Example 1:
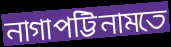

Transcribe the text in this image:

নাগাপট্টিনামতে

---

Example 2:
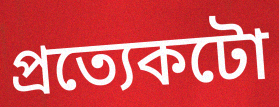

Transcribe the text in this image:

প্ৰত্যেকটো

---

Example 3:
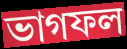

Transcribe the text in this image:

ভাগফল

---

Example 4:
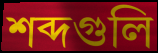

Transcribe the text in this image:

শব্দগুলি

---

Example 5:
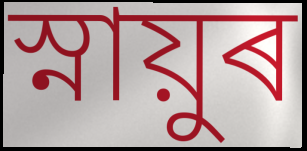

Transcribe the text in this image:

স্নায়ুৰ